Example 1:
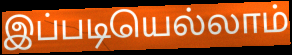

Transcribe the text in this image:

இப்படியெல்லாம்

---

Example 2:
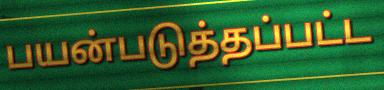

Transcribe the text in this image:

பயன்படுத்தப்பட்ட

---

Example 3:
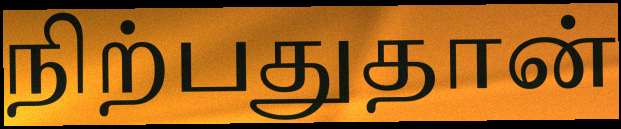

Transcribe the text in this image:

நிற்பதுதான்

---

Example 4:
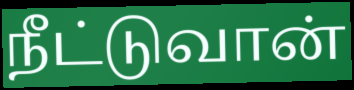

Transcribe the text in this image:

நீட்டுவான்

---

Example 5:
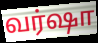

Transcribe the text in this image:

வர்ஷா